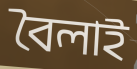
বৈলাই